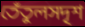
তেঁতুলসদৃশ